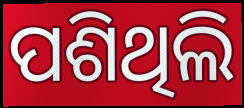
ପଶିଥିଲି